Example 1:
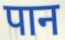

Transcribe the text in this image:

पान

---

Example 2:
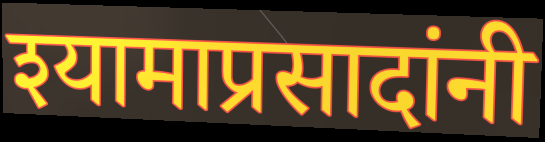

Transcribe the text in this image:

श्यामाप्रसादांनी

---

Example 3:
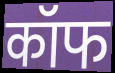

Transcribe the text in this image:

कॉफ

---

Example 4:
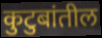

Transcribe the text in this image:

कुटुबांतील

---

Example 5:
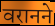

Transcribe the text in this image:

वरानने